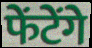
फेंटेंगे